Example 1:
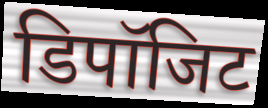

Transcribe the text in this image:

डिपॉजिट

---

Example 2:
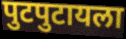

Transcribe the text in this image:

पुटपुटायला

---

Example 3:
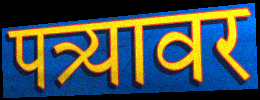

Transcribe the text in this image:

पत्र्यावर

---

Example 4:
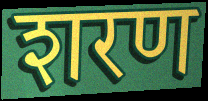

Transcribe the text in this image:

शरण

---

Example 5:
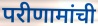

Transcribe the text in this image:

परीणामांची